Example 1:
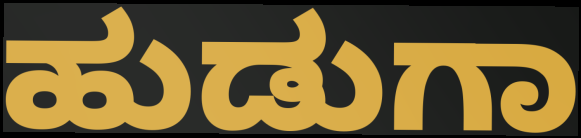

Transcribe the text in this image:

ಹುಡುಗಾ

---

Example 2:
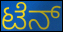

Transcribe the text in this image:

ಟೆನ್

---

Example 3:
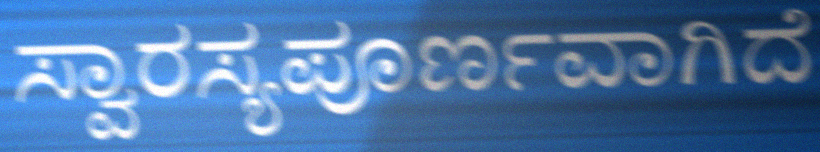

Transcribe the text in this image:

ಸ್ವಾರಸ್ಯಪೂರ್ಣವಾಗಿದೆ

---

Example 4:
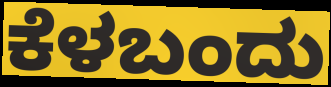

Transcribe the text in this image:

ಕೆಳಬಂದು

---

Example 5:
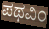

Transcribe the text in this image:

ಪಥವಿಂ